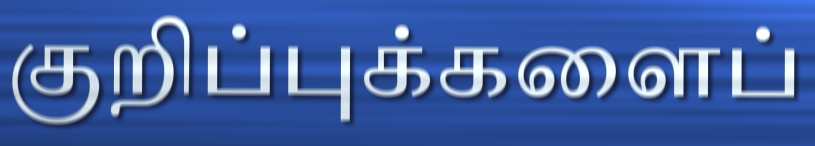
குறிப்புக்களைப்